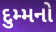
દુમ્મનો